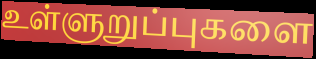
உள்ளுறுப்புகளை